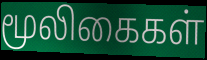
மூலிகைகள்